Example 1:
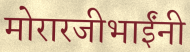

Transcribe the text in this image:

मोरारजीभाईंनी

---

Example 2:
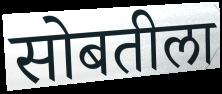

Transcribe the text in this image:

सोबतीला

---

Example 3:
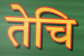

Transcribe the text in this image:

तेचि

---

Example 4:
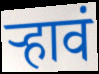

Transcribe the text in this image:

र्‍हावं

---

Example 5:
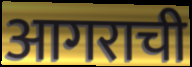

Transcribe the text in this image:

आगराची